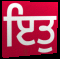
ਇਤੁ